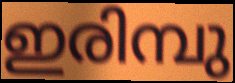
ഇരിമ്പു